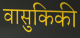
वासुकिकी